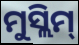
ମୁସ୍ଲିମ୍